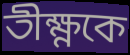
তীক্ষ্ণকে